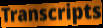
Transcripts